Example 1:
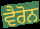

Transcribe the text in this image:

ਵੈਰੋਨ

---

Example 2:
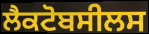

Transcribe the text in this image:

ਲੈਕਟੋਬਸੀਲਸ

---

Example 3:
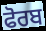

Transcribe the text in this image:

ਫੋਰਬ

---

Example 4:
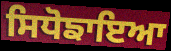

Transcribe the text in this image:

ਸਿਧੋਙਾਇਆ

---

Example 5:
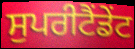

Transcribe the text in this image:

ਸੁਪਰੀਟੈਂਡੇਂਟ